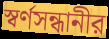
স্বর্ণসন্ধানীর